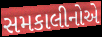
સમકાલીનોએ